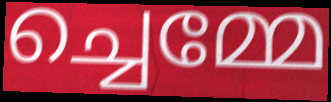
ച്ചെമ്മേ